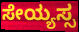
ಸೇಯ್ಯಸ್ಸ